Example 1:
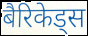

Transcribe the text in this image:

बैरिकेड्स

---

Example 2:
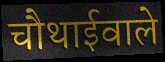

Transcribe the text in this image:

चौथाईवाले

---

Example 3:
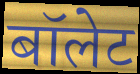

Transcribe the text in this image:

बॉलेट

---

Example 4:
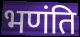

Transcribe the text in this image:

भणंति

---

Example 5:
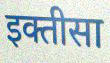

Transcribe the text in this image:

इक्तीसा